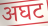
अघट